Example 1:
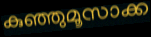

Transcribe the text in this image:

കുഞ്ഞുമൂസാക്ക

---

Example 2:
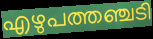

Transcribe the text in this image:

എഴുപത്തഞ്ചടി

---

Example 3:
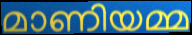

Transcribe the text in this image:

മാണിയമ്മ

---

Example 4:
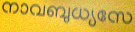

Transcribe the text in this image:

നാവബുധ്യസേ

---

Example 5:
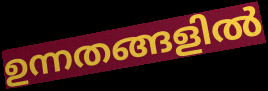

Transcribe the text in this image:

ഉന്നതങ്ങളിൽ